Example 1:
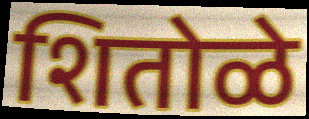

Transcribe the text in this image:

शितोळे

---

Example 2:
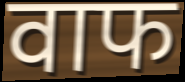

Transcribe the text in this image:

वाफ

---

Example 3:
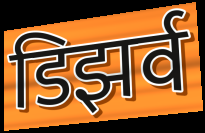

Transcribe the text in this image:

डिझर्व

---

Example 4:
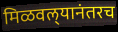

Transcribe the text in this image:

मिळवल्यानंतरच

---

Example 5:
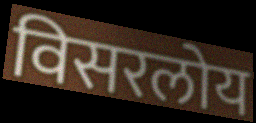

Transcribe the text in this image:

विसरलोय